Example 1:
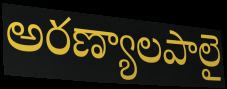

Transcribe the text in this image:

అరణ్యాలపాలై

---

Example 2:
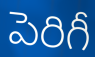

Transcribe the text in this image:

పెరిగీ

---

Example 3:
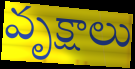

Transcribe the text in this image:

వృక్షాలు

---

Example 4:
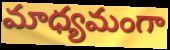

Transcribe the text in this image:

మాధ్యమంగా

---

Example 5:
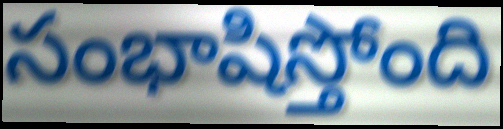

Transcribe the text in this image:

సంభాషిస్తోంది